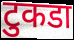
टुकडा